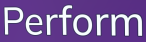
Perform